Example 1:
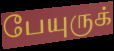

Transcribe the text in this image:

பேயுருக்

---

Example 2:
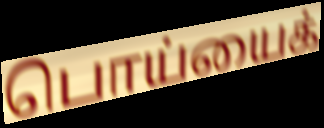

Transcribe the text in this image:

பொய்யைக்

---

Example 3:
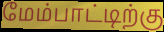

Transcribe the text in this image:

மேம்பாட்டிற்கு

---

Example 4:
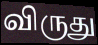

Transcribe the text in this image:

விருது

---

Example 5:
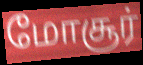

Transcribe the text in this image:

மோசூர்